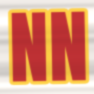
NN